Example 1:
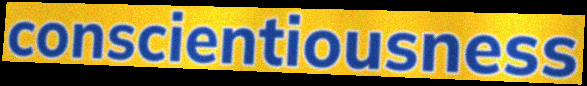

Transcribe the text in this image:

conscientiousness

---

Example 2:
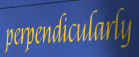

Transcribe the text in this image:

perpendicularly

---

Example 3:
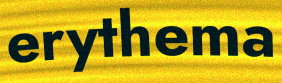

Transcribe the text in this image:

erythema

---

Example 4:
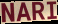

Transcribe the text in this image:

NARI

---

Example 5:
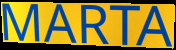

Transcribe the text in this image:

MARTA